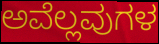
ಅವೆಲ್ಲವುಗಳ